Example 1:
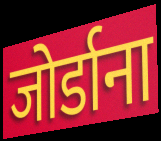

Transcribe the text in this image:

जोर्डाना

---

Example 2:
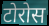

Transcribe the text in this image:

टोरोस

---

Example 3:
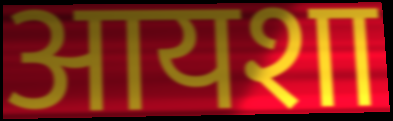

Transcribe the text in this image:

आयशा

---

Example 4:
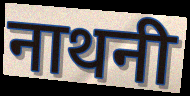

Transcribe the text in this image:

नाथनी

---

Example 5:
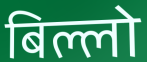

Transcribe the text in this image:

बिल्लो